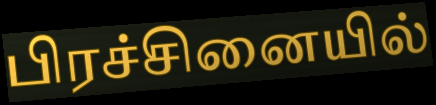
பிரச்சினையில்